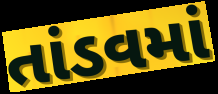
તાંડવમાં